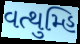
વત્થુમ્હિ